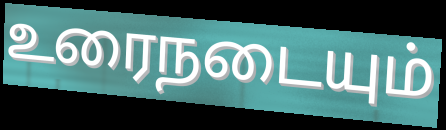
உரைநடையும்